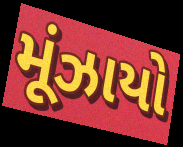
મૂંઝાયો